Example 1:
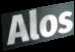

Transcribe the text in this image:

Alos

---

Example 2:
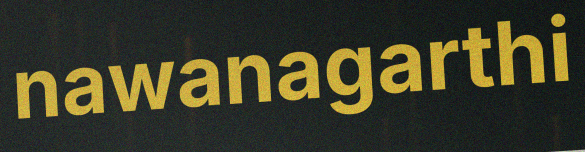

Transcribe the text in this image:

nawanagarthi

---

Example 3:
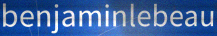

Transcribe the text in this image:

benjaminlebeau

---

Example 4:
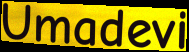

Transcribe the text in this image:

Umadevi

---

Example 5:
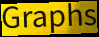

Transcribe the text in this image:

Graphs